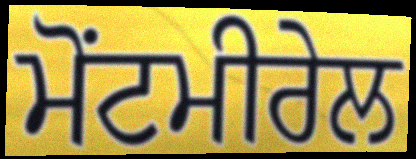
ਮੋਂਟਮੀਰੇਲ